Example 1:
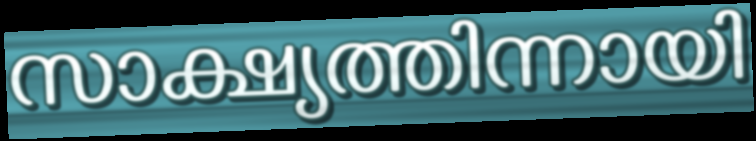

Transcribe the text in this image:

സാക്ഷ്യത്തിന്നായി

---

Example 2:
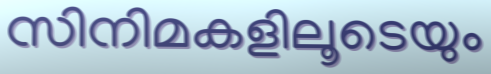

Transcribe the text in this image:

സിനിമകളിലൂടെയും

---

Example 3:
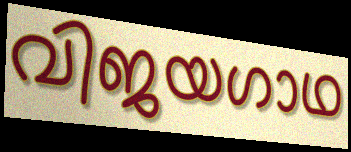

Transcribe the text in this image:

വിജയഗാഥ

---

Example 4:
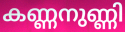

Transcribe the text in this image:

കണ്ണനുണ്ണി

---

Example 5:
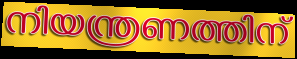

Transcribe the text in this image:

നിയന്ത്രണത്തിന്